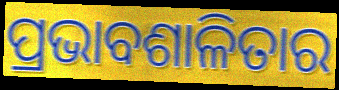
ପ୍ରଭାବଶାଳିତାର